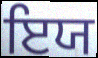
ਇਯ